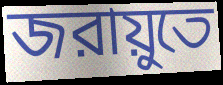
জরায়ুতে